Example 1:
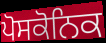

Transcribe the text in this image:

ਪੋਸਕੋਨਿਕ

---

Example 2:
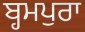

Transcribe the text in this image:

ਬ੍ਹਮਪੁਰਾ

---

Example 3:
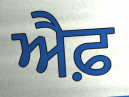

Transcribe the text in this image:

ਐਫ਼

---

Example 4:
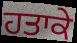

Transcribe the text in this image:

ਹਤਾਕੇ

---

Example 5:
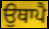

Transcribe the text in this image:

ਉਥਾਪੈ